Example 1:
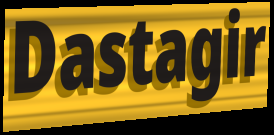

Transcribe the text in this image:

Dastagir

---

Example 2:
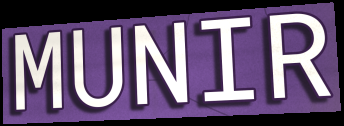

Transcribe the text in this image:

MUNIR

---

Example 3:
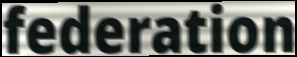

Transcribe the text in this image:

federation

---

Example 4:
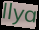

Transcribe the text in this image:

Ilya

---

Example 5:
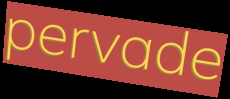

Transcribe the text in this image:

pervade